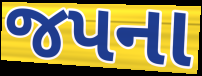
જપના